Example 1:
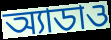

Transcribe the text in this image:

অ্যাডাও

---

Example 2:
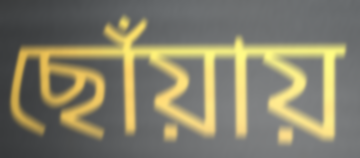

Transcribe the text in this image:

ছোঁয়ায়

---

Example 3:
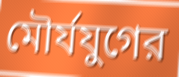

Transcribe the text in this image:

মৌর্যযুগের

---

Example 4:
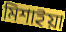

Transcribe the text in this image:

মিশাইয়া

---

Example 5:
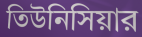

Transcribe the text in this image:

তিউনিসিয়ার